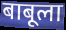
बाबूला